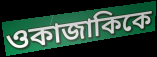
ওকাজাকিকে